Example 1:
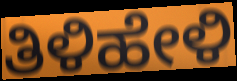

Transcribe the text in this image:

ತಿಳಿಹೇಳಿ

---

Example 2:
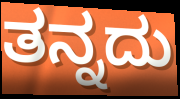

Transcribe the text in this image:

ತನ್ನದು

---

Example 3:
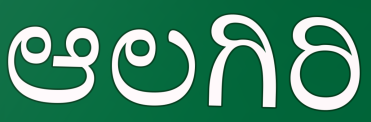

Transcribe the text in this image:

ಆಲಗಿರಿ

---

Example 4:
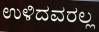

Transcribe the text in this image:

ಉಳಿದವರಲ್ಲ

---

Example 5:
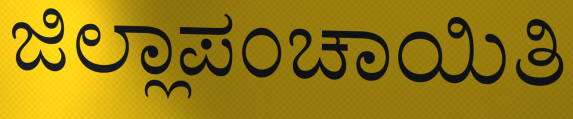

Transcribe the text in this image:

ಜಿಲ್ಲಾಪಂಚಾಯಿತಿ